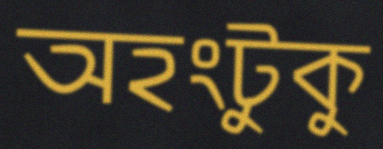
অহংটুকু